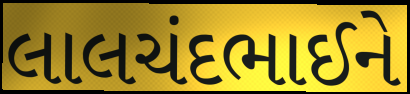
લાલચંદભાઈને